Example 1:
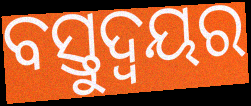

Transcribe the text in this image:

ବସ୍ତୁଦ୍ୱୟର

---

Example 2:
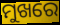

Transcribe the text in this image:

ମୁଖରେ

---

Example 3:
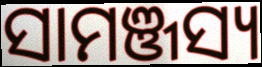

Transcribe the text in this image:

ସାମଞ୍ଜସ୍ୟ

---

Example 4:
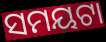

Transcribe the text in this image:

ସମୟଟା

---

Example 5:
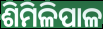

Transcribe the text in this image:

ଶିମିଳିପାଳ